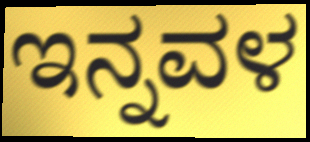
ಇನ್ನವಳ